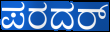
ಪರದರ್